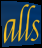
alls